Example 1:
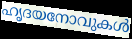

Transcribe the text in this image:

ഹൃദയനോവുകൾ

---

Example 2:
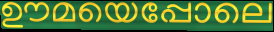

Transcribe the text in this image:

ഊമയെപ്പോലെ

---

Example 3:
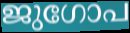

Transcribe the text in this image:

ജുഗോപ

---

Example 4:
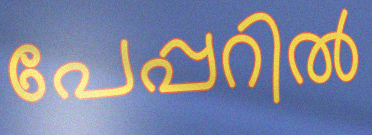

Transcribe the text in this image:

പേപ്പറിൽ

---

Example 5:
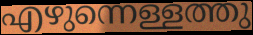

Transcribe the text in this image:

എഴുന്നെള്ളത്തു